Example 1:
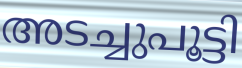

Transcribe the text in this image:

അടച്ചുപൂട്ടി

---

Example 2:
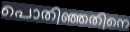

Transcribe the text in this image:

പൊതിഞ്ഞതിനെ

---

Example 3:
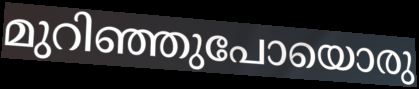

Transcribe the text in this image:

മുറിഞ്ഞുപോയൊരു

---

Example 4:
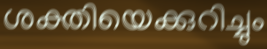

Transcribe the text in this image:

ശക്തിയെക്കുറിച്ചും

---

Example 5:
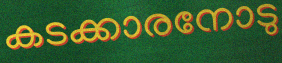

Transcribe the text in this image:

കടക്കാരനോടു